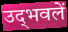
उद्‍भवलें